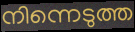
നിന്നെടുത്ത